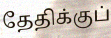
தேதிக்குப்